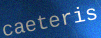
caeteris